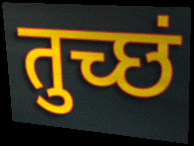
तुच्छं